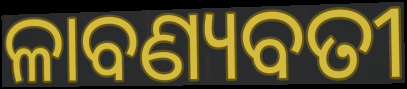
ଳାବଣ୍ୟବତୀ